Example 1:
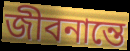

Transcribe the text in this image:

জীবনান্তে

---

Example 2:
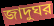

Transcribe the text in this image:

জাদুঘর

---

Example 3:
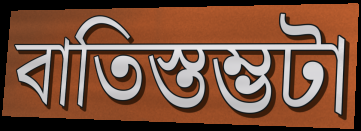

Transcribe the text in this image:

বাতিস্তম্ভটা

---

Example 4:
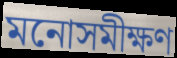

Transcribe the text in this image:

মনোসমীক্ষণ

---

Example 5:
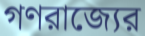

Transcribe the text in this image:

গণরাজ্যের